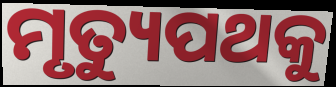
ମୃତ୍ୟୁପଥକୁ